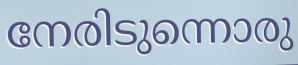
നേരിടുന്നൊരു